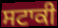
ਸਟਾਕੀ